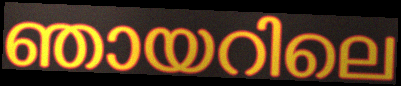
ഞായറിലെ